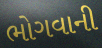
ભોગવાની